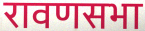
रावणसभा